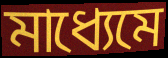
মাধ্যেমে